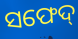
ସଫେଦ୍